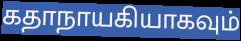
கதாநாயகியாகவும்